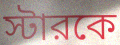
স্টারকে